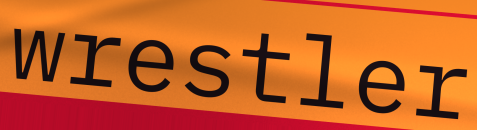
wrestler